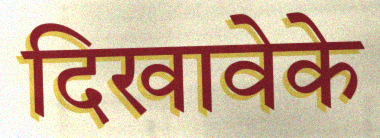
दिखावेके